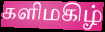
களிமகிழ்